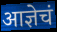
आज्ञेचं